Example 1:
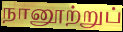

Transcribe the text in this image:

நானூற்றுப்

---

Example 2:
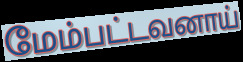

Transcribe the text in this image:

மேம்பட்டவனாய்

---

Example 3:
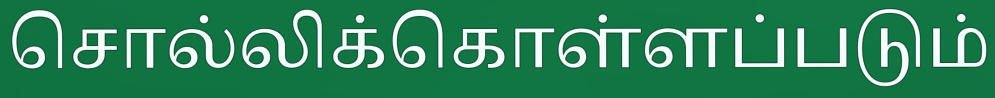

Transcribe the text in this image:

சொல்லிக்கொள்ளப்படும்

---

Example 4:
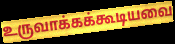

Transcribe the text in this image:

உருவாக்கக்கூடியவை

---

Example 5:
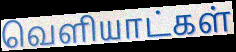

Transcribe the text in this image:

வெளியாட்கள்